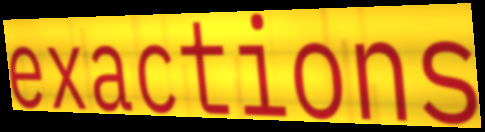
exactions